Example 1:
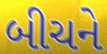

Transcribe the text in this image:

બીચને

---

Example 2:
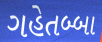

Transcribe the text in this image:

ગહેતબ્બા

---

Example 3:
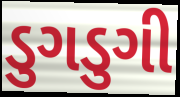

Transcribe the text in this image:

ડુગડુગી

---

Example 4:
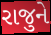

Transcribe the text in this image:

રાજુને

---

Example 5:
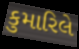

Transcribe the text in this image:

કુમારિલે